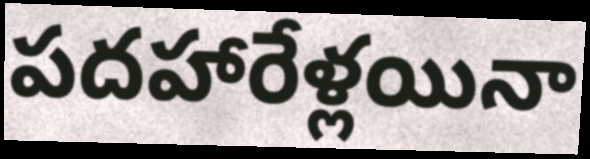
పదహారేళ్లయినా